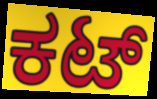
ಕಟ್